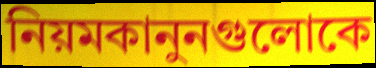
নিয়মকানুনগুলোকে